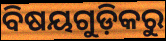
ବିଷୟଗୁଡ଼ିକରୁ